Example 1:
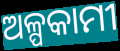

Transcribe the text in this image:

ଅଳ୍ପକାମୀ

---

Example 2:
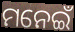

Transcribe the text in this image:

ମନେଇଁ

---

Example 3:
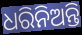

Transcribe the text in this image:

ଧରିନିଅନ୍ତି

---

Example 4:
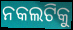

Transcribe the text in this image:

ନକଲଟିକୁ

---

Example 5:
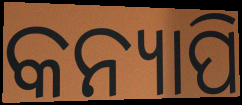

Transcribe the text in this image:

କନ୍ୟାପି